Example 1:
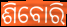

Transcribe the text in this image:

ଶିବୋରି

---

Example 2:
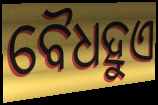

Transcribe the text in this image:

ବୈଧହୁଏ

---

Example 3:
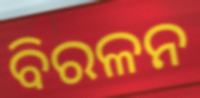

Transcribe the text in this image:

ବିରଳନ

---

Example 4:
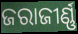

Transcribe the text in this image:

ଜରାଜୀର୍ଣ୍ଣ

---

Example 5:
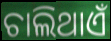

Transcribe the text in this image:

ଚାଲିଥାଏଁ